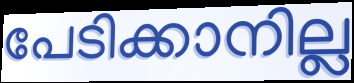
പേടിക്കാനില്ല